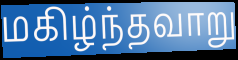
மகிழ்ந்தவாறு